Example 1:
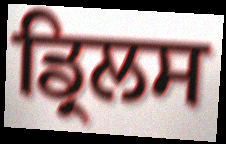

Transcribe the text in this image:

ਡ੍ਰਿਲਸ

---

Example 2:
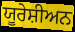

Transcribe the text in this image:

ਯੂਰੇਸ਼ੀਅਨ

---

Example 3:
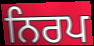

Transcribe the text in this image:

ਨਿਰਪ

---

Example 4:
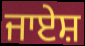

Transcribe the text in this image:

ਜਾਏਸ਼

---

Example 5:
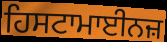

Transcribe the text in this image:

ਹਿਸਟਾਮਾਈਨਜ਼